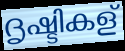
ദൃഷ്ടികള്